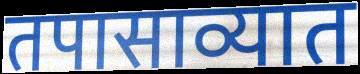
तपासाव्यात